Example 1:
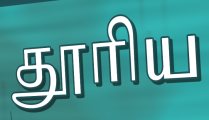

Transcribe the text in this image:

தூரிய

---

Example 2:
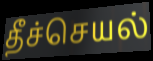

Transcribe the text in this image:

தீச்செயல்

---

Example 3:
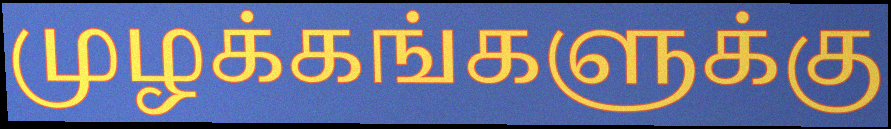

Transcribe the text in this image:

முழக்கங்களுக்கு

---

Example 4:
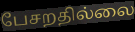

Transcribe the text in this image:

பேசறதில்லை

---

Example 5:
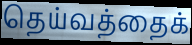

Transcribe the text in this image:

தெய்வத்தைக்